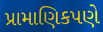
પ્રામાણિકપણે